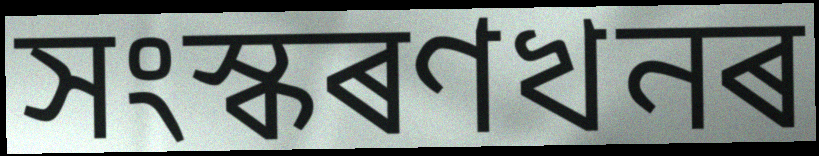
সংস্কৰণখনৰ